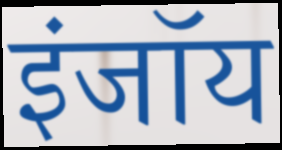
इंजॉय